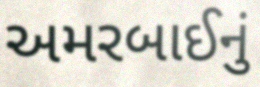
અમરબાઈનું